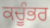
ਕਚੂੰਭਰ